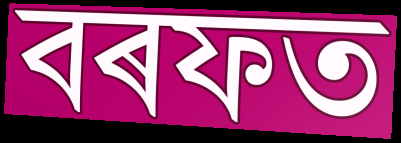
বৰফত